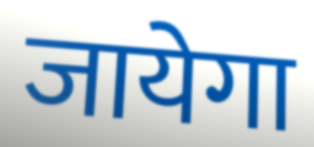
जायेगा